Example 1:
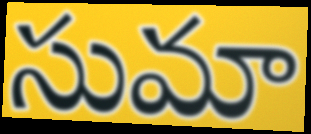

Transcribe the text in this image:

సుమా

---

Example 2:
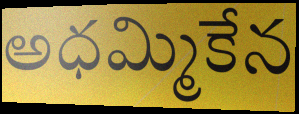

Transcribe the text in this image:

అధమ్మికేన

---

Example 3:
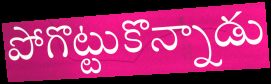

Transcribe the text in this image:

పోగొట్టుకొన్నాడు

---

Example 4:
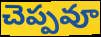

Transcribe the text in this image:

చెప్పవూ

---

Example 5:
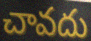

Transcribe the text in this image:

చావదు